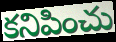
కనిపించు